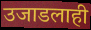
उजाडलाही